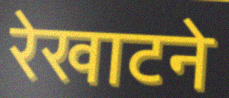
रेखाटने